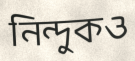
নিন্দুকও